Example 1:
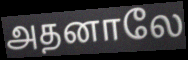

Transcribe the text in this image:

அதனாலே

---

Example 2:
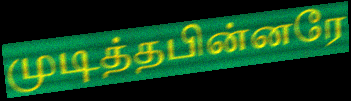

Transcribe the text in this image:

முடித்தபின்னரே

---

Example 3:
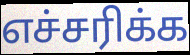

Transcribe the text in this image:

எச்சரிக்க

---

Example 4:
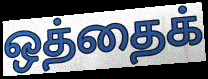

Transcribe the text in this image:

ஒத்தைக்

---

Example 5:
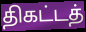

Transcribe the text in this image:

திகட்டத்